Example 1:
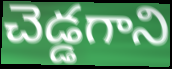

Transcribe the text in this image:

చెడ్డగాని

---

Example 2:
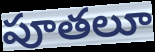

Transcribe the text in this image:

పూతలూ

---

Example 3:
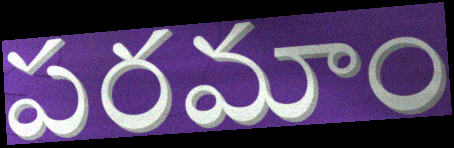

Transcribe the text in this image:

పరమాం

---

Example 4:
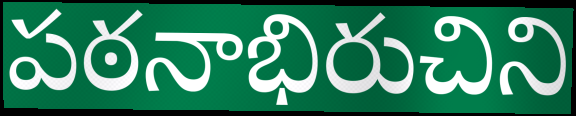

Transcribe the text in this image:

పఠనాభిరుచిని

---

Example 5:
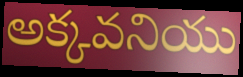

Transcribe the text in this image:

అక్కవనియు